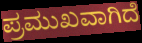
ಪ್ರಮುಖವಾಗಿದೆ